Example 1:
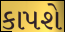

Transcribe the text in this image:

કાપશે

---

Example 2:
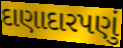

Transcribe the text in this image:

દાણાદારપણું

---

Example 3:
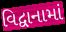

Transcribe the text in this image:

વિદ્વાનામાં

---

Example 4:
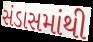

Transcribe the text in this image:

સંડાસમાંથી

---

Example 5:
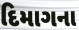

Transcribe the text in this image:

દિમાગના